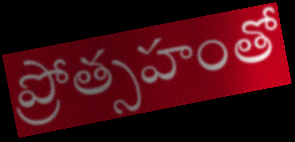
ప్రోత్సహంతో